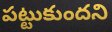
పట్టుకుందని